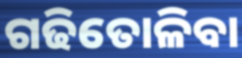
ଗଢିତୋଳିବା